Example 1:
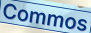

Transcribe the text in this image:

Commos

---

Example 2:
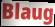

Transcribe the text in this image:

Blaug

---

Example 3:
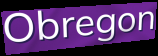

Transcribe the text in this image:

Obregon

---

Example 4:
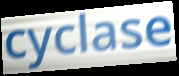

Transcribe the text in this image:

cyclase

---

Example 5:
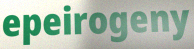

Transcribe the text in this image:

epeirogeny